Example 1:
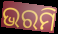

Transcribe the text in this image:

ଭରମି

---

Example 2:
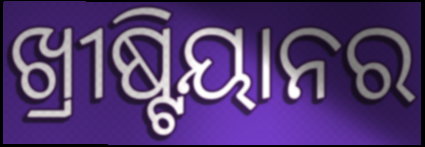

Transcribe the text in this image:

ଖ୍ରୀଷ୍ଟିୟାନର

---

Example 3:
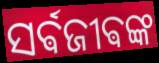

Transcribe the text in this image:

ସର୍ଵଜୀଵଙ୍କ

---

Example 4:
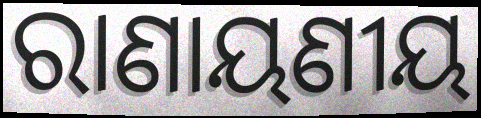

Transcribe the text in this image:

ରାଣାୟଣୀୟ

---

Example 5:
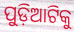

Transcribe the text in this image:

ପୁଡ଼ିଆଟିକୁ